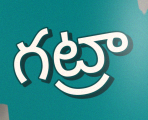
గట్రా